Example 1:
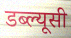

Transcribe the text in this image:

डब्ल्यूसी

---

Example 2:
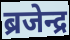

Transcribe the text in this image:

ब्रजेन्द्र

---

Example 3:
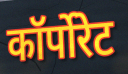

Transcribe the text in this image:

कॉर्पोरेट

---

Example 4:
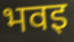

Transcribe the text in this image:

भवइ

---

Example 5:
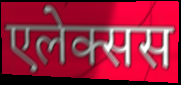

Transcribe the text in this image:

एलेक्सस